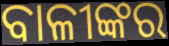
ବାଳୀଙ୍କର